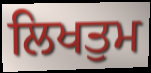
ਲਿਖਤੁਮ